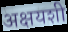
अक्षयशी